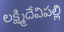
లక్ష్మిదేవిపల్లి